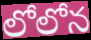
లోలోన